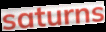
saturns